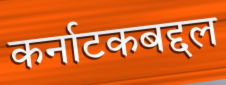
कर्नाटकबद्दल